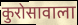
कुरोसावाला